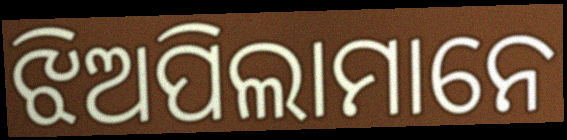
ଝିଅପିଲାମାନେ